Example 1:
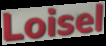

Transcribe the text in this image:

Loisel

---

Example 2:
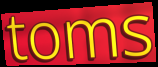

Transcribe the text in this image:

toms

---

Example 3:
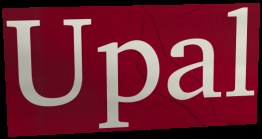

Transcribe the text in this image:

Upal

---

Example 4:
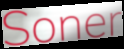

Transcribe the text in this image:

Soner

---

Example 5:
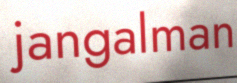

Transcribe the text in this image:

jangalman